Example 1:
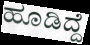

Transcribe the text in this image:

ಹೂಡಿದ್ದೆ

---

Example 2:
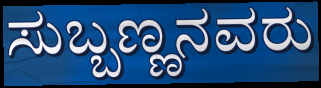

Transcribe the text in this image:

ಸುಬ್ಬಣ್ಣನವರು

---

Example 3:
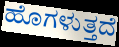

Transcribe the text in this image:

ಹೊಗಳುತ್ತದೆ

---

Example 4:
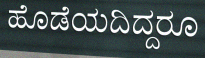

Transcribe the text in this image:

ಹೊಡೆಯದಿದ್ದರೂ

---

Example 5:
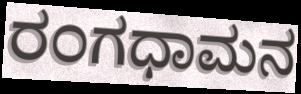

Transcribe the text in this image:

ರಂಗಧಾಮನ